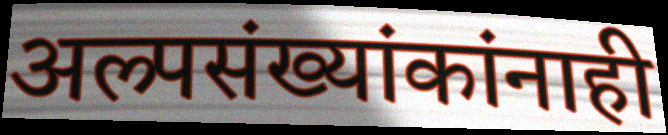
अल्पसंख्यांकांनाही